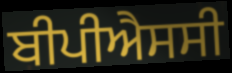
ਬੀਪੀਐਸਸੀ